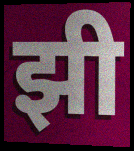
झी